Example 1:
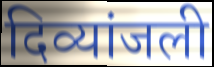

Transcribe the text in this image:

दिव्यांजली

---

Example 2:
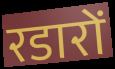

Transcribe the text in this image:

रडारों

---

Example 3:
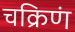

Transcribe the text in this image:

चक्रिणं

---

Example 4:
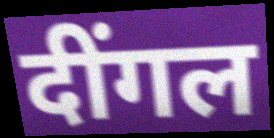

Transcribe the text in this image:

दींगल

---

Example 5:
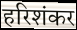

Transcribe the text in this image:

हरिशंकर